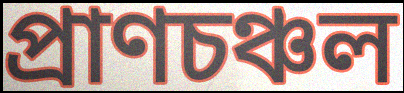
প্রাণচঞ্চল